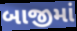
બાજીમાં